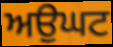
ਅਉਘਟ